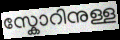
സ്കോറിനുള്ള